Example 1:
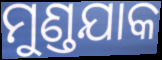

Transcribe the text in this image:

ମୁଣ୍ଡଯାକ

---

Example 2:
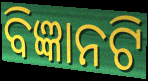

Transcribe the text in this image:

ବିଜ୍ଞାନଟି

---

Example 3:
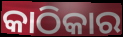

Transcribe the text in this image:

କାଠିକାର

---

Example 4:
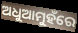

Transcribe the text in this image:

ଅଧୁଆମୁହଁରେ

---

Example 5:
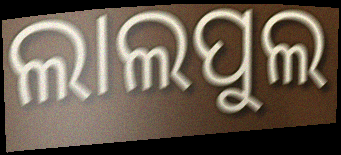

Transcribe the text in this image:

ଲାଲପୁଲ